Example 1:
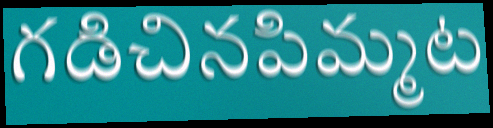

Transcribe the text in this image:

గడిచినపిమ్మట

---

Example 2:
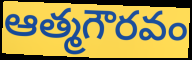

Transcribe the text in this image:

ఆత్మగౌరవం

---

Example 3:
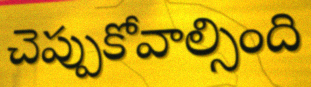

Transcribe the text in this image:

చెప్పుకోవాల్సింది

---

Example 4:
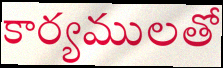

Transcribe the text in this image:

కార్యములతో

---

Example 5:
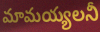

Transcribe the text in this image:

మామయ్యలనీ